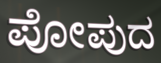
ಪೋಪುದ